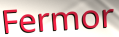
Fermor